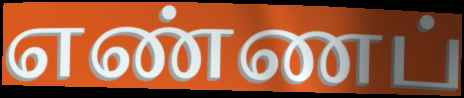
எண்ணப்